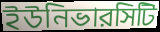
ইউনিভারসিটি